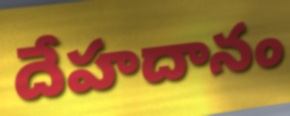
దేహదానం